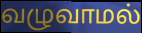
வழுவாமல்